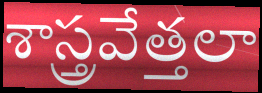
శాస్త్రవేత్తలా